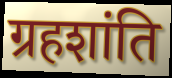
ग्रहशांति